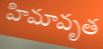
హిమావృత